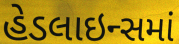
હેડલાઇન્સમાં